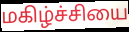
மகிழ்ச்சியை